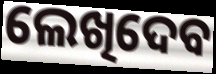
ଲେଖିଦେବ